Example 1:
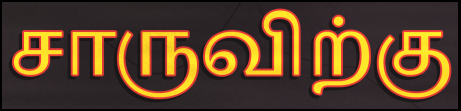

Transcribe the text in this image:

சாருவிற்கு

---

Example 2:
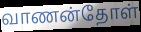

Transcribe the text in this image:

வாணன்தோள்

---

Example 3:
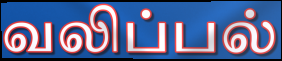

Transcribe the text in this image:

வலிப்பல்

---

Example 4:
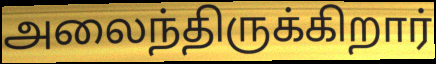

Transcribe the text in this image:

அலைந்திருக்கிறார்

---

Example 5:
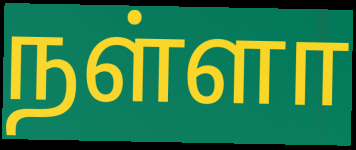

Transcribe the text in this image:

நள்ளா